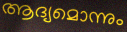
ആദ്യമൊന്നും